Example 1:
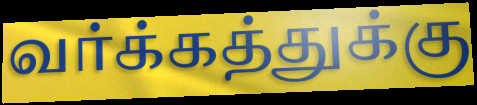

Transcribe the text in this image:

வர்க்கத்துக்கு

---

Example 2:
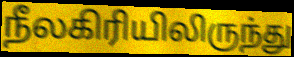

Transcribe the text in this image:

நீலகிரியிலிருந்து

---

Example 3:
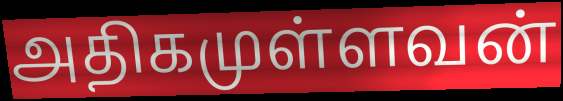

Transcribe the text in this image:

அதிகமுள்ளவன்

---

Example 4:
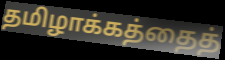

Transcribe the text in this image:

தமிழாக்கத்தைத்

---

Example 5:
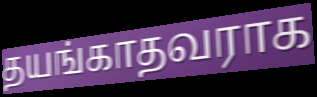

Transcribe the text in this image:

தயங்காதவராக